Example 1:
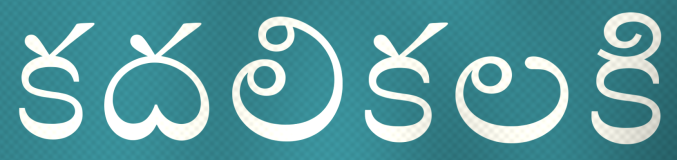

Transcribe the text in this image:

కదలికలకి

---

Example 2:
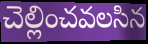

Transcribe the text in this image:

చెల్లించవలసిన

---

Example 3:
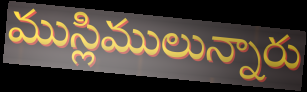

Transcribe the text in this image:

ముస్లిములున్నారు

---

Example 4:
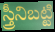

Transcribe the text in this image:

స్త్రీనిబట్టి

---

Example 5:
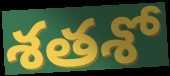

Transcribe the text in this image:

శతశో